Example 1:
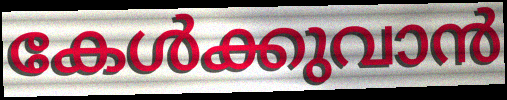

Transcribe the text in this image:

കേൾക്കുവാൻ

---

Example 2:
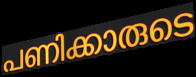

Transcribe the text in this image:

പണിക്കാരുടെ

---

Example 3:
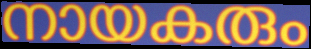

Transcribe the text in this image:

നായകരും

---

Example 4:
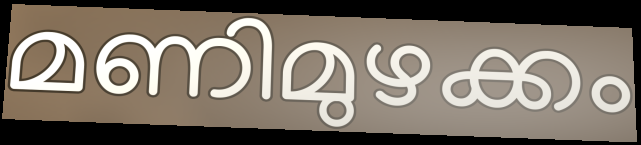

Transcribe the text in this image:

മണിമുഴക്കം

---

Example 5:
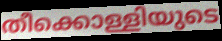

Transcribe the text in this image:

തീക്കൊള്ളിയുടെ